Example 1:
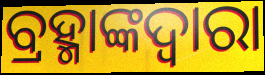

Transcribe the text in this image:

ବ୍ରହ୍ମାଙ୍କଦ୍ୱାରା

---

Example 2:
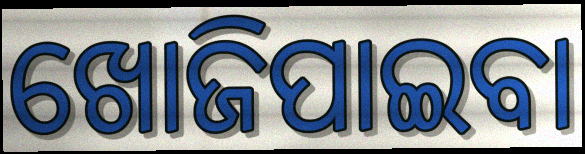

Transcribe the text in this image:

ଖୋଜିପାଇବା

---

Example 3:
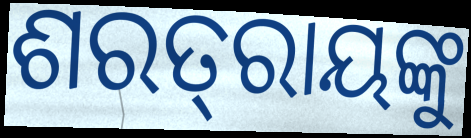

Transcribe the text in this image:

ଶରତ୍‌ରାୟଙ୍କୁ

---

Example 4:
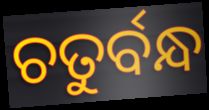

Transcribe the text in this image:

ଚତୁର୍ବନ୍ଧ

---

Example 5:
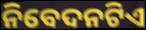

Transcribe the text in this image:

ନିବେଦନଟିଏ